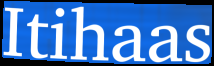
Itihaas